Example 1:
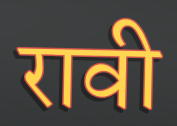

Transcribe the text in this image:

रावी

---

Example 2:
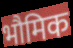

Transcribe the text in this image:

भौमिक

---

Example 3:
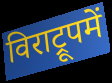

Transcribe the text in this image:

विराट्रूपमें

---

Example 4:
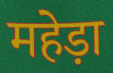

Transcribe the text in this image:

महेड़ा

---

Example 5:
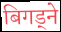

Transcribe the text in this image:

बिगड्ने